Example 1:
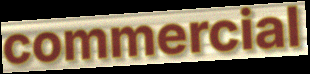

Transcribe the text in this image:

commercial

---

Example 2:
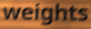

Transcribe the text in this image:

weights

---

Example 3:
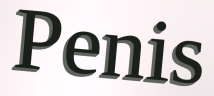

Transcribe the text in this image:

Penis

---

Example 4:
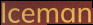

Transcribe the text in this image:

Iceman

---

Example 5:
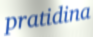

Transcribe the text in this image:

pratidina